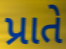
પ્રાતે